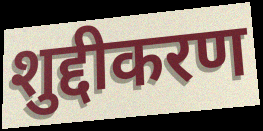
शुद्दीकरण